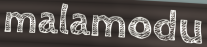
malamodu